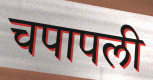
चपापली